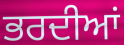
ਭਰਦੀਆਂ